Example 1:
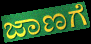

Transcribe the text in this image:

ಜಾಣಗೆ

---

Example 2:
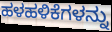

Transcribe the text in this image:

ಹಳಹಳಿಕೆಗಳನ್ನು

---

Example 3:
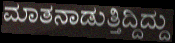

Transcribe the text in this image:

ಮಾತನಾಡುತ್ತಿದ್ದಿದ್ದು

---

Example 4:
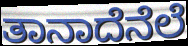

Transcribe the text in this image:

ತಾನಾದೆನೆಲೆ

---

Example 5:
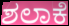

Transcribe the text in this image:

ಶಲಾಕೆ